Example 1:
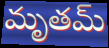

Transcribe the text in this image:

మృతమ్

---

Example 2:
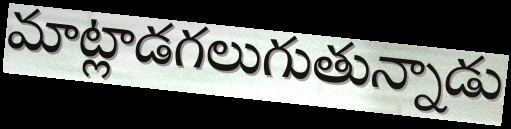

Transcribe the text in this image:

మాట్లాడగలుగుతున్నాడు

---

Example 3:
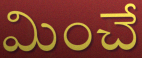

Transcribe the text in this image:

మించే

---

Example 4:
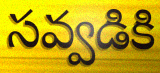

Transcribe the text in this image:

సవ్వడికి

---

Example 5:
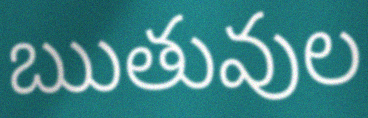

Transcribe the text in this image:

ఋతువుల